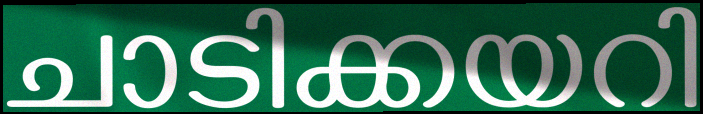
ചാടിക്കയറി